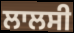
ਲਾਲਸੀ